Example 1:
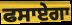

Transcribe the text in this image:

ਫਸਾਏਗਾ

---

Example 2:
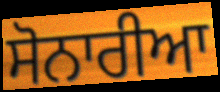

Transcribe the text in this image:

ਸੋਨਾਰੀਆ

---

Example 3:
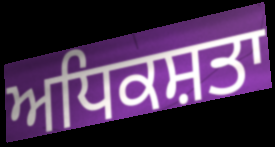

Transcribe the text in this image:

ਅਧਿਕਸ਼ਤਾ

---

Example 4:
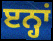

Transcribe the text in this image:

ੲਨ੍ਹਾਂ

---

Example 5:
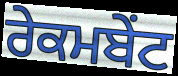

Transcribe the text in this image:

ਰੇਕਮਬੇਂਟ